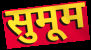
सुमूम